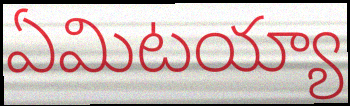
ఏమిటయ్యా